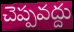
చెప్పవద్దు